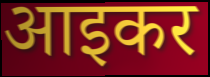
आइकर